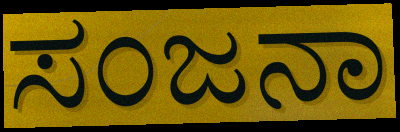
ಸಂಜನಾ